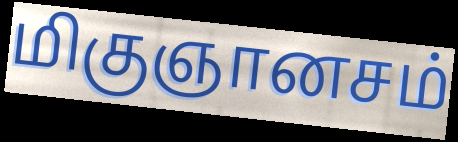
மிகுஞானசம்